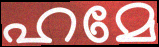
ഹമേ